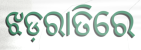
ଝଡ଼ରାତିରେ